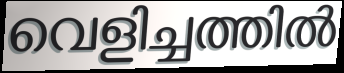
വെളിച്ചത്തിൽ